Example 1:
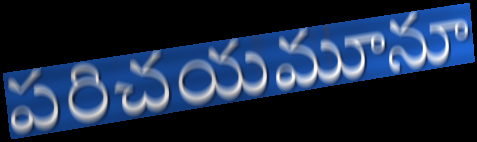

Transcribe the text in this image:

పరిచయమూనూ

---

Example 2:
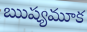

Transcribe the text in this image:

ఋష్యమూక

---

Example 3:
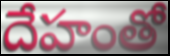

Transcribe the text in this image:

దేహంతో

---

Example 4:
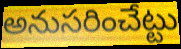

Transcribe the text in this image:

అనుసరించేట్టు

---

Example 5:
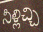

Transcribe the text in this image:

నీళ్లిచ్చి